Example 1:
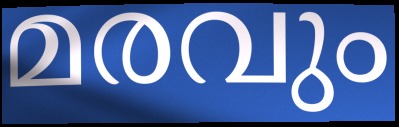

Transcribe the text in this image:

മരവും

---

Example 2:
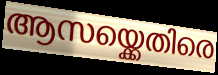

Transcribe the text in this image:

ആസയ്ക്കെതിരെ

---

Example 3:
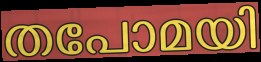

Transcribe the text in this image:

തപോമയി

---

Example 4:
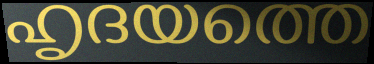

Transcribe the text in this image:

ഹൃദയത്തെ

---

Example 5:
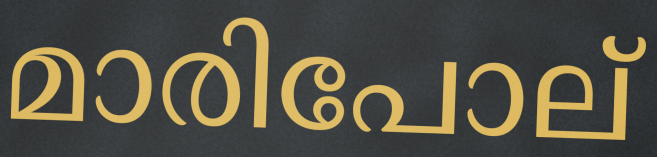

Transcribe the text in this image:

മാരിപോല്